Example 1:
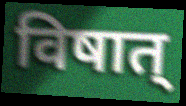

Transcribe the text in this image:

विषात्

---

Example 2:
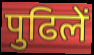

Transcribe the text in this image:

पुढिलें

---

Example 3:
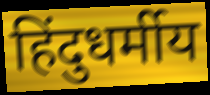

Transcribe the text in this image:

हिंदुधर्मीय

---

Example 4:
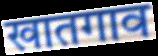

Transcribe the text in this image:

खातगाव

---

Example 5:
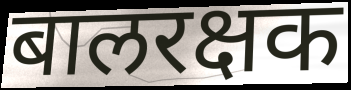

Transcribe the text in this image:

बालरक्षक